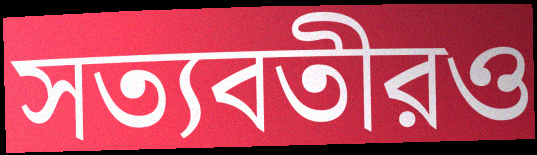
সত্যবতীরও